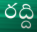
రద్ది